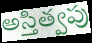
అస్తిత్వపు